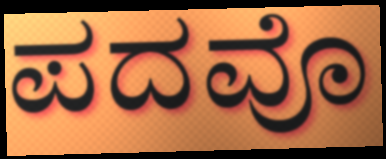
ಪದವೊ